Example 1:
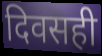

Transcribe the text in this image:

दिवसही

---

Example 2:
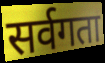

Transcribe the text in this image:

सर्वगता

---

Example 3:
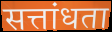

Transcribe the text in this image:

सत्तांधता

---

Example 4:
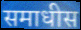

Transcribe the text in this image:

समाधीस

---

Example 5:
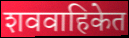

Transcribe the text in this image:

शववाहिकेत